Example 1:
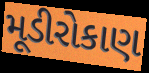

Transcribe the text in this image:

મૂડીરોકાણ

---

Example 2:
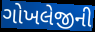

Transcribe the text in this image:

ગોખલેજીની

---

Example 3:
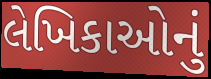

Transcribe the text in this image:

લેખિકાઓનું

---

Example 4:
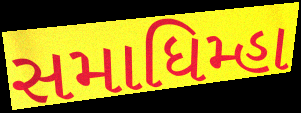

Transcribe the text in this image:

સમાધિમ્હા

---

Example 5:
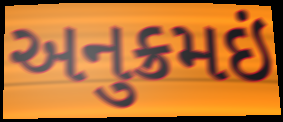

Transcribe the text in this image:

અનુક્રમઇં